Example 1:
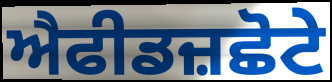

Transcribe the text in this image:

ਐਫੀਡਜ਼ਛੋਟੇ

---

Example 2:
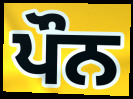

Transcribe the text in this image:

ਪੌਨ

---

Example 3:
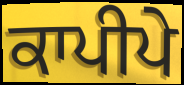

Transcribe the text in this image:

ਕਾਪੀਪੇ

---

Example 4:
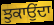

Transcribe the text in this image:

ਝੁਕਾਉਂਦਾ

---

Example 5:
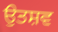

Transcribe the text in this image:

ਉਤਸ਼ਵ